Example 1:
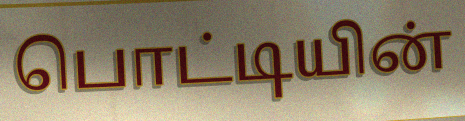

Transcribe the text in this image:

பொட்டியின்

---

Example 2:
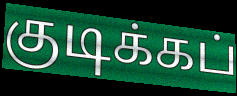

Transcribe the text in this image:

குடிக்கப்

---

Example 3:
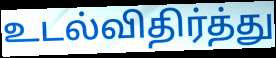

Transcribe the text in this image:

உடல்விதிர்த்து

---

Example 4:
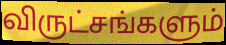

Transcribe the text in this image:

விருட்சங்களும்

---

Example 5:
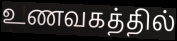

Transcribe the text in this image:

உணவகத்தில்